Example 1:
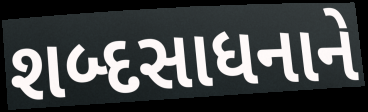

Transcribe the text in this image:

શબ્દસાધનાને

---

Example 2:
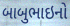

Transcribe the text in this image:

બાબુભાઇનો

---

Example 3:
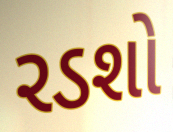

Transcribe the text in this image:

રડશો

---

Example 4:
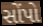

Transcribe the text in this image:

સોંપો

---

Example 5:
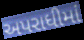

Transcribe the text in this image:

અપરાધીમાં